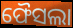
ଫୈସଲା